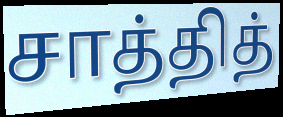
சாத்தித்